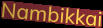
Nambikkai